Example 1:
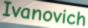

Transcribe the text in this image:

Ivanovich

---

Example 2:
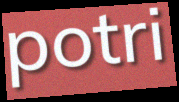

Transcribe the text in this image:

potri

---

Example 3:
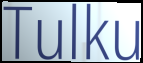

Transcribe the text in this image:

Tulku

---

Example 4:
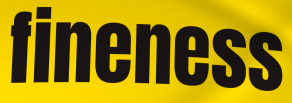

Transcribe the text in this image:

fineness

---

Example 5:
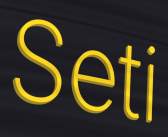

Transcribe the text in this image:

Seti